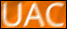
UAC